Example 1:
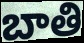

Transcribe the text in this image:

బాతి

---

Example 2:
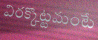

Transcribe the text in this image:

విరక్కొట్టమంటే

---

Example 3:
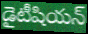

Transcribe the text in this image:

డైటీషియన్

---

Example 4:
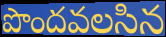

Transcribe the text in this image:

పొందవలసిన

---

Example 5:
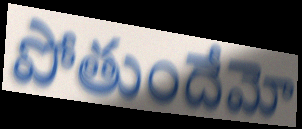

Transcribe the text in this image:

పోతుందేమో